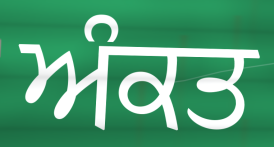
ਅੰਕਤ